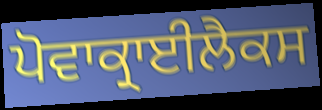
ਪੋਵਾਕ੍ਰਾਈਲੈਕਸ